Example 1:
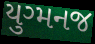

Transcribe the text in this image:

યુગ્મનજ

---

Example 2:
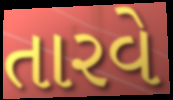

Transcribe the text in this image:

તારવે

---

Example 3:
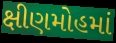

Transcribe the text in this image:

ક્ષીણમોહમાં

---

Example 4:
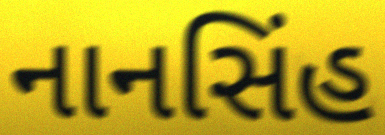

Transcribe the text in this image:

નાનસિંહ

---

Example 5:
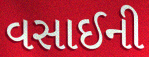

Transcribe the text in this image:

વસાઈની